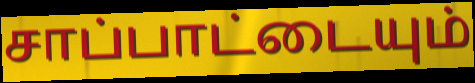
சாப்பாட்டையும்